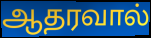
ஆதரவால்